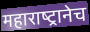
महाराष्ट्रानेच